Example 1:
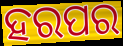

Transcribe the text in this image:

ହରପର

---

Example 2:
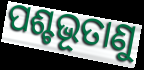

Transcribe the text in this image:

ପଶ୍ଚଭୂତାଣୁ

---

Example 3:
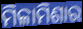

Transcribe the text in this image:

ମିଳାମିଶାର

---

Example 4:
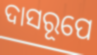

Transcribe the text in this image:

ଦାସରୂପେ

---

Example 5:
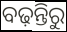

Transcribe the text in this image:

ବଢ଼ନ୍ତିରୁ